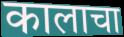
कालाचा